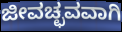
ಜೀವಚ್ಛವವಾಗಿ